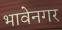
भावेनगर